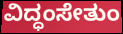
ವಿದ್ಧಂಸೇತುಂ